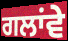
ਗਲਾਂਵੇ